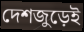
দেশজুড়েই